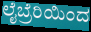
ಲೈಬ್ರೆರಿಯಿಂದ